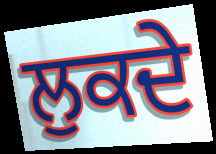
ਲੁਕਦੇ